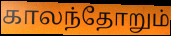
காலந்தோறும்